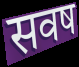
सवष